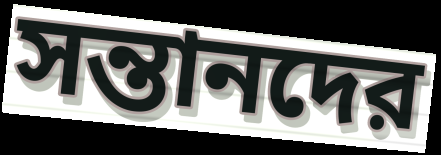
সন্তানদের